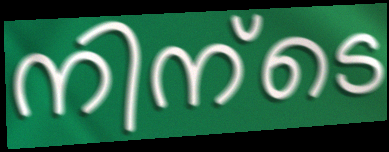
നിന്ടെ